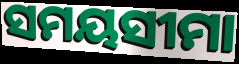
ସମୟସୀମା